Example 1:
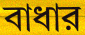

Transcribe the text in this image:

বাধার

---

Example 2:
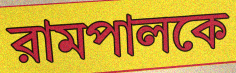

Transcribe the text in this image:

রামপালকে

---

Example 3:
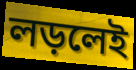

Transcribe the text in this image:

লড়লেই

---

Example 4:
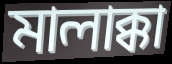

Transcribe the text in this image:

মালাক্কা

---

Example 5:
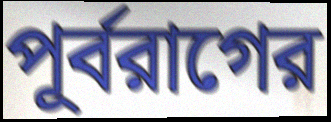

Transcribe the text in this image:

পূর্বরাগের